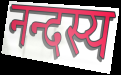
नन्दस्य